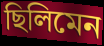
ছিলিমেন